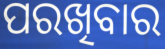
ପରଖିବାର